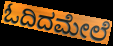
ಓದಿದಮೇಲೆ